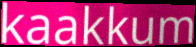
kaakkum